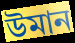
উমান